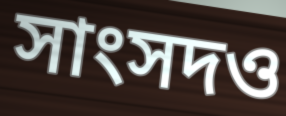
সাংসদও